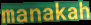
manakah